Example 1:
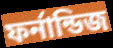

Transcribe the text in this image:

ফর্নান্ডিজ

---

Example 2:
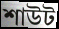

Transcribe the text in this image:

শাউট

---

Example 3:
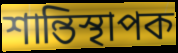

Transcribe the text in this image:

শান্তিস্থাপক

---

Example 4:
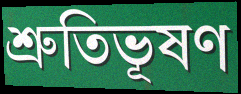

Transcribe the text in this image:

শ্রুতিভূষণ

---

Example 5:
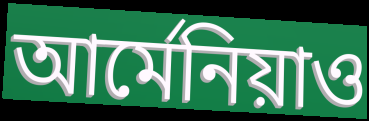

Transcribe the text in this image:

আর্মেনিয়াও